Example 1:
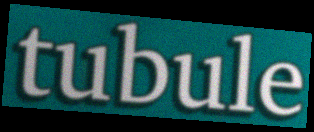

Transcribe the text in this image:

tubule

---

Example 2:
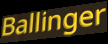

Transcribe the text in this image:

Ballinger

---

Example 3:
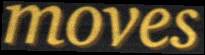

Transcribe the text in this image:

moves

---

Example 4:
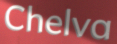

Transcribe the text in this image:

Chelva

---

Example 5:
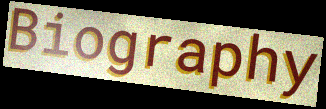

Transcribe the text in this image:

Biography